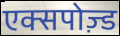
एक्सपोज़्ड